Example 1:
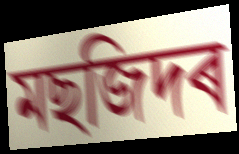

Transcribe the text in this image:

মছজিদৰ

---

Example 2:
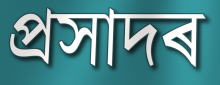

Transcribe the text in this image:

প্ৰসাদৰ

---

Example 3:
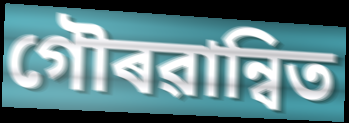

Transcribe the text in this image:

গৌৰৱান্বিত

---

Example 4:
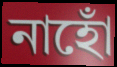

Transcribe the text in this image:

নাহোঁ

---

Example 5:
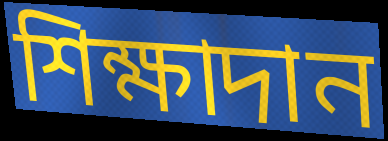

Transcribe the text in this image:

শিক্ষাদান